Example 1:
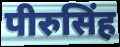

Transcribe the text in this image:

पीरुसिंह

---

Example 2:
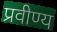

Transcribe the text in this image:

प्रवीण्य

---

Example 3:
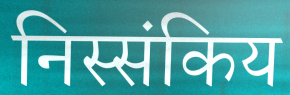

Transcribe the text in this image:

निस्संकिय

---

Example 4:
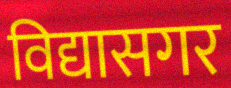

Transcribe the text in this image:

विद्यासगर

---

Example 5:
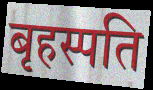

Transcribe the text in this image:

बृहस्पति